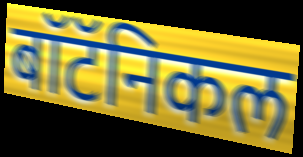
बॉटॅनिकल